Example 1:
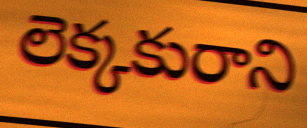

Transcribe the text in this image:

లెక్కకురాని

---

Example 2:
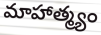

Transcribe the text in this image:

మాహాత్మ్యం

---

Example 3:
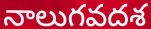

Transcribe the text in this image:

నాలుగవదశ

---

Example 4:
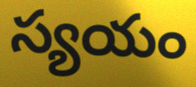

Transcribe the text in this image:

స్యయం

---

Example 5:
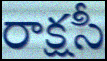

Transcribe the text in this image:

రాక్షసీ